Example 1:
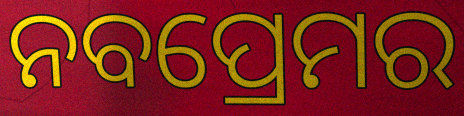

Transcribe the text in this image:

ନବପ୍ରେମର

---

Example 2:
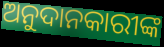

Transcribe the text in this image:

ଅନୁଦାନକାରୀଙ୍କ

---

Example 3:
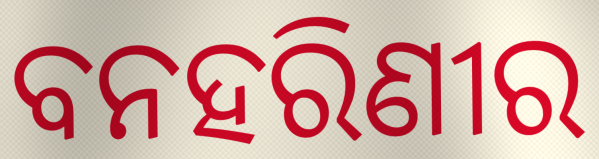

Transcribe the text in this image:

ବନହରିଣୀର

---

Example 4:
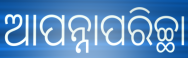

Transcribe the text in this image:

ଆପନ୍ନାପରିଚ୍ଛା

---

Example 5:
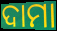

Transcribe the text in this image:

ଦାମା